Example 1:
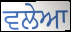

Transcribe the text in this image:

ਵਲੇਆ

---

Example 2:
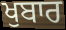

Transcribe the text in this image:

ਖੁਬਾਰ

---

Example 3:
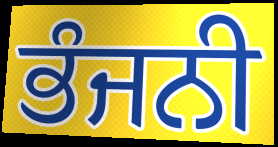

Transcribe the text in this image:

ਭੰਜਨੀ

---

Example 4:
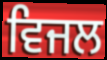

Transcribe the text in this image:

ਵਿਜਲ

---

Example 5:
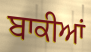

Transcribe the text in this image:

ਬਾਕੀਆਂ